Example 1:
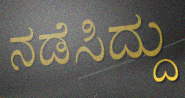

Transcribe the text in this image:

ನಡೆಸಿದ್ದು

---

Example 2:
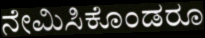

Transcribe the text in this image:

ನೇಮಿಸಿಕೊಂಡರೂ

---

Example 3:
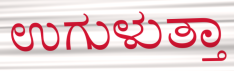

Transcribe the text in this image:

ಉಗುಳುತ್ತಾ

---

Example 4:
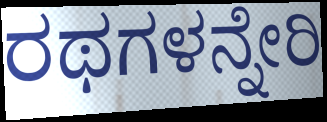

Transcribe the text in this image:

ರಥಗಳನ್ನೇರಿ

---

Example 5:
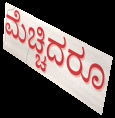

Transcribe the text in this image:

ಮೆಚ್ಚಿದರೂ